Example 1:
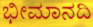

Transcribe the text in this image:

ಭೀಮಾನದಿ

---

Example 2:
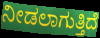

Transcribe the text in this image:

ನೀಡಲಾಗುತ್ತಿದೆ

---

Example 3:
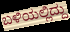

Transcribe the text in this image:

ಬಳಿಯಲ್ಲಿದ್ದು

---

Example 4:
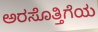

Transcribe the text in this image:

ಅರಸೊತ್ತಿಗೆಯ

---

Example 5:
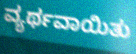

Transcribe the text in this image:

ವ್ಯರ್ಥವಾಯಿತು